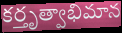
కర్తృత్వాభిమాన